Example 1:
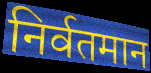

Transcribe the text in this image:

निर्वतमान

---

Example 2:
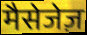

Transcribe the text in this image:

मैसेजेज़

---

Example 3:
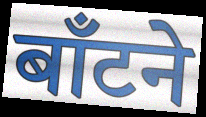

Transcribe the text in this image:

बाँटने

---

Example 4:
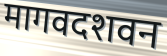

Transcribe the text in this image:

मागवदशवन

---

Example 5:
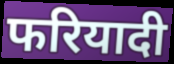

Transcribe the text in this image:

फरियादी